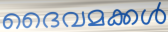
ദൈവമക്കൾ